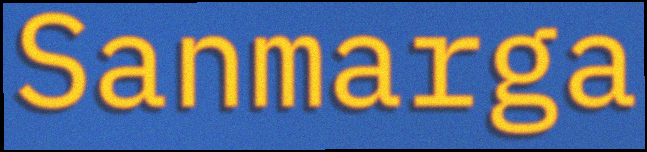
Sanmarga